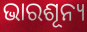
ଭାରଶୂନ୍ୟ